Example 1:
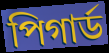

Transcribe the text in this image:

পিগার্ড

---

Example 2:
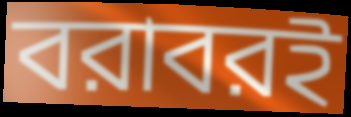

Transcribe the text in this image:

বরাবরই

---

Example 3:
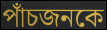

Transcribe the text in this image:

পাঁচজনকে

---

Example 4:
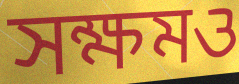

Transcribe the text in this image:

সক্ষমও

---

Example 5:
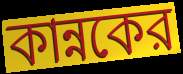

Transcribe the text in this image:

কান্নকের